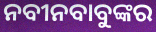
ନବୀନବାବୁଙ୍କର